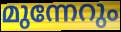
മുന്നേറും